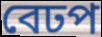
বেঢপ